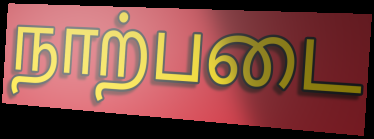
நாற்படை